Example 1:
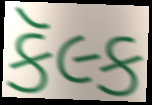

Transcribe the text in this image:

કૅલ્ક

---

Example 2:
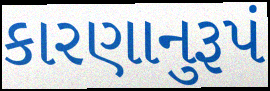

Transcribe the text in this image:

કારણાનુરૂપં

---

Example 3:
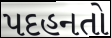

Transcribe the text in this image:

પદહનતો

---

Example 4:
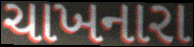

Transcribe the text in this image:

ચાખનારા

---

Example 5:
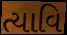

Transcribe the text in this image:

ત્યાવિ